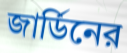
জার্ডিনের